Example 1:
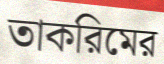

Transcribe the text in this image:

তাকরিমের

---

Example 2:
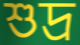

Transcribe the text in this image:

শুদ্র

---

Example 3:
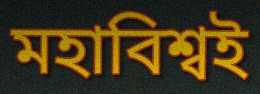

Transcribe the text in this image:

মহাবিশ্বই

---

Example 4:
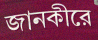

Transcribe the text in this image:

জানকীরে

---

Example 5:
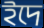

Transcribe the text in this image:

ইদে